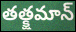
తత్క్షమాన్